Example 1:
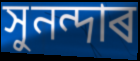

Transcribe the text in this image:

সুনন্দাৰ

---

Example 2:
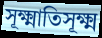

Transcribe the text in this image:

সূক্ষ্মাতিসূক্ষ্ম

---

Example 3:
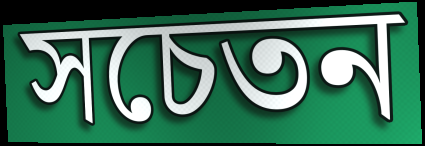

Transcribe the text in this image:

সচেতন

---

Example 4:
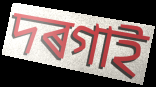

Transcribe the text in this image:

দৰগাই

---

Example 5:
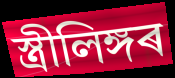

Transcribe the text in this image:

স্ত্ৰীলিঙ্গৰ